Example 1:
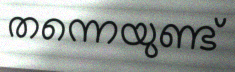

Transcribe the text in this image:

തന്നെയുണ്ട്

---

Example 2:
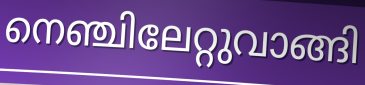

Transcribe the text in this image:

നെഞ്ചിലേറ്റുവാങ്ങി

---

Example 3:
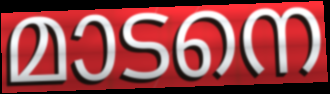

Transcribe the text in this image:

മാടനെ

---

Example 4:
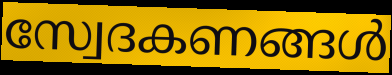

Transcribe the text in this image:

സ്വേദകണങ്ങൾ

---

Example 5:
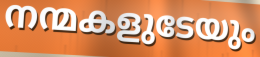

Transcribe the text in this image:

നന്മകളുടേയും